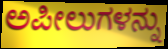
ಅಪೀಲುಗಳನ್ನು